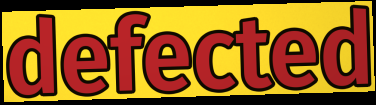
defected